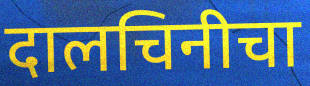
दालचिनीचा